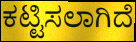
ಕಟ್ಟಿಸಲಾಗಿದೆ